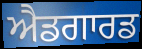
ਐਡਗਾਰਡ